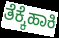
ತೆಕ್ಕೆಹಾಕಿ